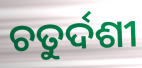
ଚତୁର୍ଦଶୀ